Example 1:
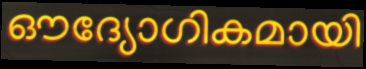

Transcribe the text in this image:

ഔദ്യോഗികമായി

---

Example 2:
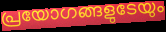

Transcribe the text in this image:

പ്രയോഗങ്ങളുടേയും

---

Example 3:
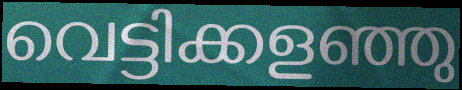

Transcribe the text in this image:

വെട്ടിക്കളഞ്ഞു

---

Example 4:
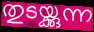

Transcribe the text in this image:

തുടയ്ക്കുന്ന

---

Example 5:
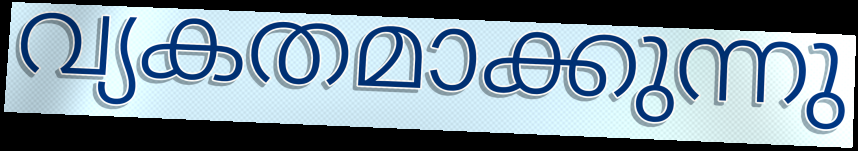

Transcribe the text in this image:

വ്യകതമാക്കുന്നു